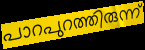
പാറപുറത്തിരുന്ന്